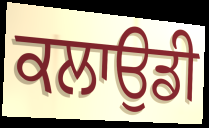
ਕਲਾਉਡੀ